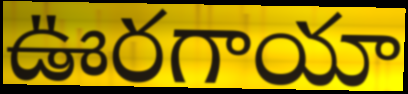
ఊరగాయా